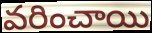
వరించాయి